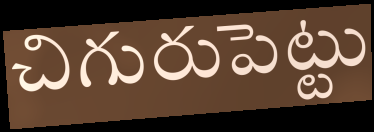
చిగురుపెట్టు